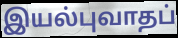
இயல்புவாதப்